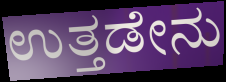
ಉತ್ತಡೇನು